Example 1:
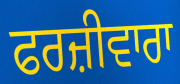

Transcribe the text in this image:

ਫਰਜ਼ੀਵਾਰਾ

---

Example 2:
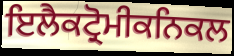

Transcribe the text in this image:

ਇਲੈਕਟ੍ਰੋਮੀਕਨਿਕਲ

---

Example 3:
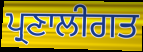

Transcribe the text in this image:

ਪ੍ਰਣਾਲੀਗਤ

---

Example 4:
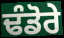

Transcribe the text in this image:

ਢੰਡੋਰੇ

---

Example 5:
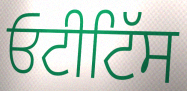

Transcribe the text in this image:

ਓਟੀਟਿੱਸ